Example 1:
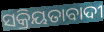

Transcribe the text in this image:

ସକ୍ରିୟତାବାଦୀ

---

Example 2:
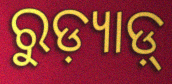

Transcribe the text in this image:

ରୁଡ଼୍ୟାଡ଼୍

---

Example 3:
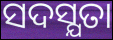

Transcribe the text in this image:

ସଦସ୍ଯତା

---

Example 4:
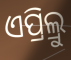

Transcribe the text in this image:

ଏପ୍ରିଲ୍ରୁ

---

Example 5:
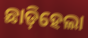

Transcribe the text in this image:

ଛାଡ଼ିହେଲା